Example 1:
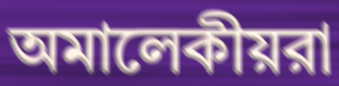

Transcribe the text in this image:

অমালেকীয়রা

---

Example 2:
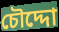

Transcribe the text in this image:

চৌদ্দো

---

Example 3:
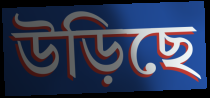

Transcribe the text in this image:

উড়িছে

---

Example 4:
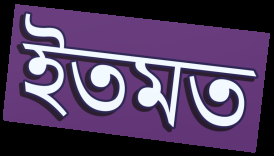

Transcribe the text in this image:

ইতমত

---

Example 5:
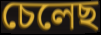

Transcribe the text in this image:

চেলেছ